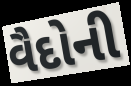
વૈદોની